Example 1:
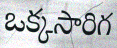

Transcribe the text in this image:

ఒక్కసారిగ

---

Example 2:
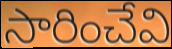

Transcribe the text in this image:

సారించేవి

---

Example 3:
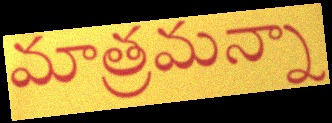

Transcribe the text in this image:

మాత్రమన్నా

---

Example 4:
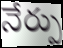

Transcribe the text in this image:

నేర్పు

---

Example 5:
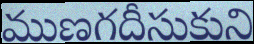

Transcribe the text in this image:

ముణగదీసుకుని